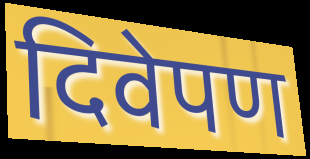
दिवेपण